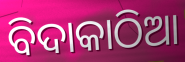
ବିଦାକାଠିଆ